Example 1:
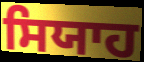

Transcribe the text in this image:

ਸਿਯਾਹ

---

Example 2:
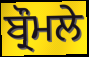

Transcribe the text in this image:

ਬ੍ਰੌਮਲੇ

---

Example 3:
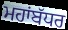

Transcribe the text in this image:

ਮਹਾਂਬੱਧਰ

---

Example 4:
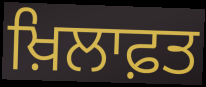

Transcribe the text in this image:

ਖ਼ਿਲਾਫ਼ਤ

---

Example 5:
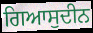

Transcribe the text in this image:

ਗਿਆਸੁਦੀਨ